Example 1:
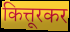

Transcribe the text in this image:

कित्तूरकर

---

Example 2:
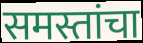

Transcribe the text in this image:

समस्तांचा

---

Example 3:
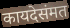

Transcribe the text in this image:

कायदेसंमत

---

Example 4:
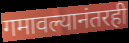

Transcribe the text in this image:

गमावल्यानंतरही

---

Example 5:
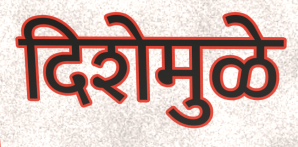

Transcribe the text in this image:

दिशेमुळे